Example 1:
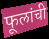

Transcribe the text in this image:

फूलांची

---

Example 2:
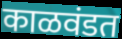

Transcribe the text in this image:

काळवंडत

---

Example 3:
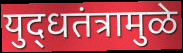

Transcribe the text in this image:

युद्धतंत्रामुळे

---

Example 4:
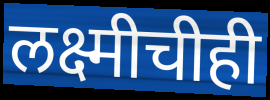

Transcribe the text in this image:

लक्ष्मीचीही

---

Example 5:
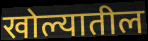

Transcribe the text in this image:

खोल्यातील